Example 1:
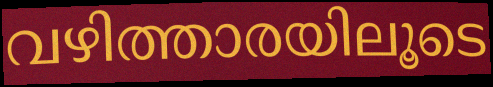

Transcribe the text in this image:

വഴിത്താരയിലൂടെ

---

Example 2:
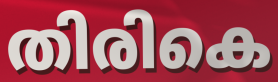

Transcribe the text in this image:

തിരികെ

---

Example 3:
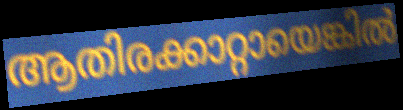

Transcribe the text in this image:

ആതിരക്കാറ്റായെങ്കിൽ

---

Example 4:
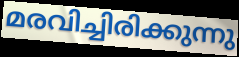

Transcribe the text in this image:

മരവിച്ചിരിക്കുന്നു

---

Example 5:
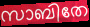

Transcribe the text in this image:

സാബിതേ